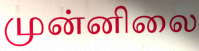
முன்னிலை